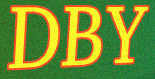
DBY